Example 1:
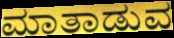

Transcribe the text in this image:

ಮಾತಾಡುವ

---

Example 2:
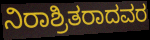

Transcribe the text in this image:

ನಿರಾಶ್ರಿತರಾದವರ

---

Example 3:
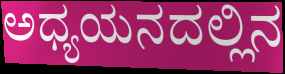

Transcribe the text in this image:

ಅಧ್ಯಯನದಲ್ಲಿನ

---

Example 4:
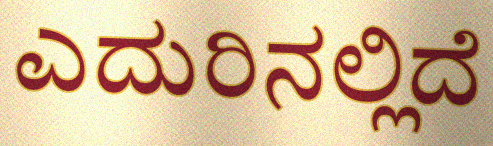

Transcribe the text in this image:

ಎದುರಿನಲ್ಲಿದೆ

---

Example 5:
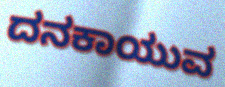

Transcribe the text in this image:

ದನಕಾಯುವ